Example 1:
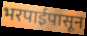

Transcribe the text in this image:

भरपाईपासून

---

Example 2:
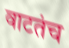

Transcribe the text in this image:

वाटतंच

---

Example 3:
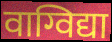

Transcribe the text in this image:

वाग्विद्या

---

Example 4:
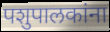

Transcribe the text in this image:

पशुपालकांना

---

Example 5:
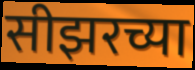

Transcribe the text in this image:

सीझरच्या